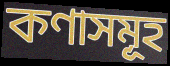
কণাসমূহ